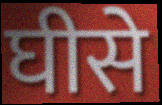
घीसे